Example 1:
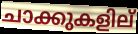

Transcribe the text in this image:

ചാക്കുകളില്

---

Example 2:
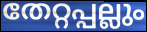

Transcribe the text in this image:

തേറ്റപ്പല്ലും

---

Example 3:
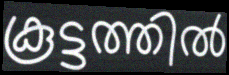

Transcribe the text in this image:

കൂട്ടത്തിൽ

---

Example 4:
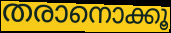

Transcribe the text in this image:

തരാനൊക്കൂ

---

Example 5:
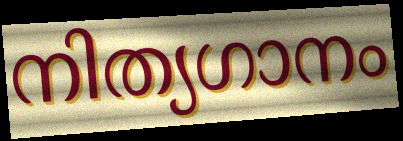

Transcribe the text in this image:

നിത്യഗാനം